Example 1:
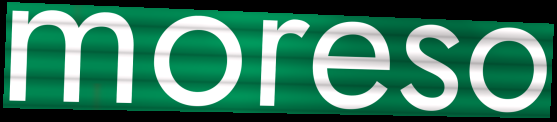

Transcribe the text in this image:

moreso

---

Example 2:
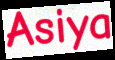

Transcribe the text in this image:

Asiya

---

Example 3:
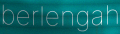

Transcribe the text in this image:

berlengah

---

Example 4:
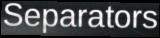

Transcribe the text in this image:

Separators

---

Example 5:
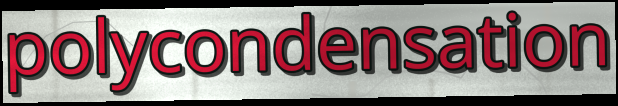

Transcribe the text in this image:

polycondensation